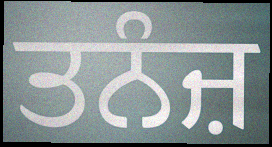
ਤਨੰਜ਼